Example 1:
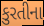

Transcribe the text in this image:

કુરતીના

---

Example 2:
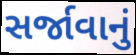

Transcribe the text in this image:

સર્જાવાનું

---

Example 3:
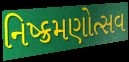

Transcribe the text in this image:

નિષ્ક્રમણોત્સવ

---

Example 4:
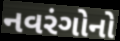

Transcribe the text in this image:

નવરંગોનો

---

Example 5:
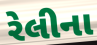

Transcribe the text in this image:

રેલીના